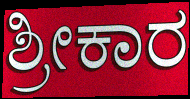
ಶ್ರೀಕಾರ